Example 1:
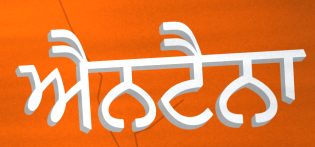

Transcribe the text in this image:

ਐਨਟੈਨਾ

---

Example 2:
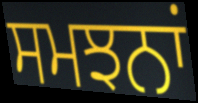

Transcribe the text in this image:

ਸਮਝਨਾਂ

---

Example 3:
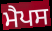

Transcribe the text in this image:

ਮੈਪਸ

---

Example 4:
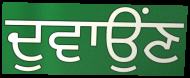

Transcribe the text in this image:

ਦੁਵਾਉਂਣ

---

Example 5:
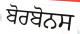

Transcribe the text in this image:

ਬੋਰਬੋਨਸ